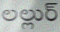
లల్లుర్